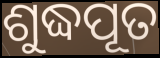
ଶୁଦ୍ଧପୂତ